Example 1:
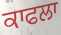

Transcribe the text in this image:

ਕਾਫਲਾ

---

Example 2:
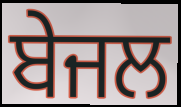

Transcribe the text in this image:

ਬੇਜਲ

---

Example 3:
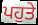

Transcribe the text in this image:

ਪਹੁਤੇ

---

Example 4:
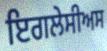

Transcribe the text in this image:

ਇਗਲੇਸੀਅਸ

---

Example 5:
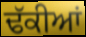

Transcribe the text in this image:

ਢੱਕੀਆਂ